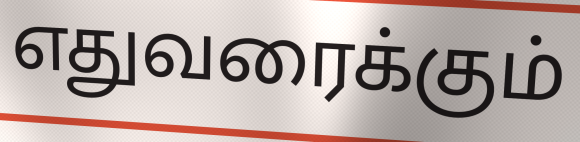
எதுவரைக்கும்